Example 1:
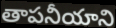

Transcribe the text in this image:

తాపనీయాని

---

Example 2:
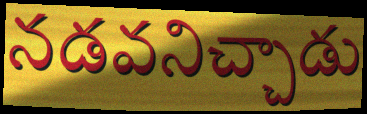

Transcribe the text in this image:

నడవనిచ్చాడు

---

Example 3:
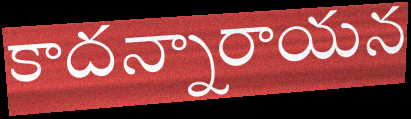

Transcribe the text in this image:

కాదన్నారాయన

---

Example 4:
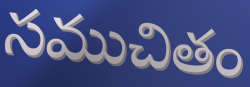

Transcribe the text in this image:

సముచితం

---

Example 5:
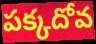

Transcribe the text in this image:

పక్కదోవ